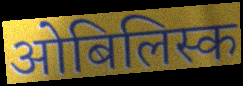
ओबिलिस्क